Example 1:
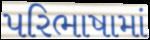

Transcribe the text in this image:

પરિભાષામાં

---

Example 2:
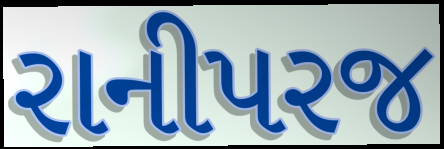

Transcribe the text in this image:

રાનીપરજ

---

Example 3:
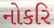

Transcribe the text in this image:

નોકરિ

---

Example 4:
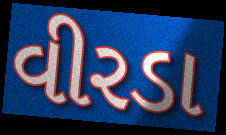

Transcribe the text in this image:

વીરડા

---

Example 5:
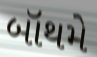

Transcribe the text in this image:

બૉથમે